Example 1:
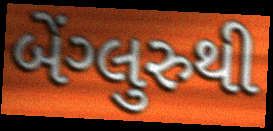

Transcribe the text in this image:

બેંગ્લુરુથી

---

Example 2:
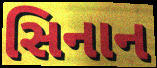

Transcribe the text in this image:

સિનાન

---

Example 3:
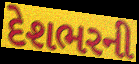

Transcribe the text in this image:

દેશભરની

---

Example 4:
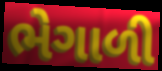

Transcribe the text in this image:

ભેગાળી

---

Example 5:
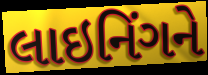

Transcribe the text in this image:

લાઇનિંગને